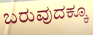
ಬರುವುದಕ್ಕೂ